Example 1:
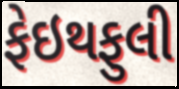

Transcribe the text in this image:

ફેઇથફુલી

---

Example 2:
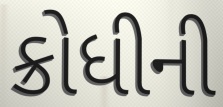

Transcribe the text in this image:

ક્રોધીની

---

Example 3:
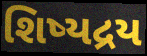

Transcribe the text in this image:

શિષ્યદ્રય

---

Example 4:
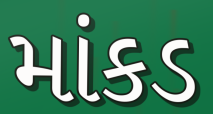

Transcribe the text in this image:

માંકડ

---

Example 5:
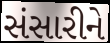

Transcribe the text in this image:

સંસારીને